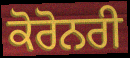
ਕੋਰੋਨਰੀ